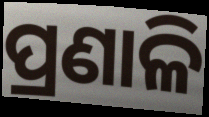
ପ୍ରଣାଳି